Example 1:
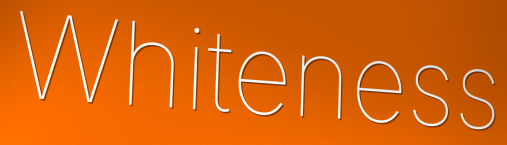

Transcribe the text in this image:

Whiteness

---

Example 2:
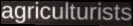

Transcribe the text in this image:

agriculturists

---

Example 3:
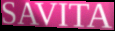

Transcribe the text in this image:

SAVITA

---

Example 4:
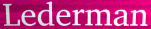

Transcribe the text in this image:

Lederman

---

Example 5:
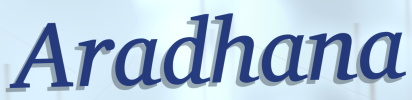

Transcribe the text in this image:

Aradhana